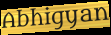
Abhigyan